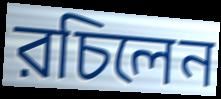
রচিলেন